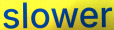
slower